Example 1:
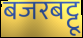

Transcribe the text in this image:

बजरबट्टू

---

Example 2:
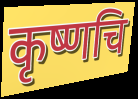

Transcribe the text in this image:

कृष्णचि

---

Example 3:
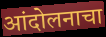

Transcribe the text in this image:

आंदोलनाचा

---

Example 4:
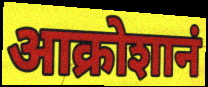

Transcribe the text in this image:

आक्रोशानं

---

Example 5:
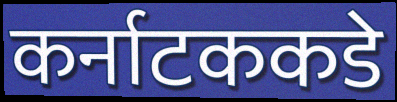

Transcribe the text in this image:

कर्नाटककडे